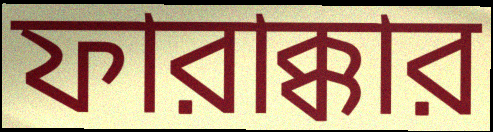
ফারাক্কার